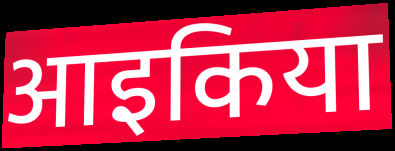
आइकिया